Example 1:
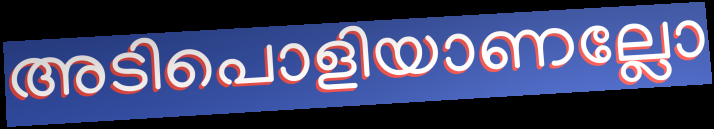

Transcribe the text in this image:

അടിപൊളിയാണല്ലോ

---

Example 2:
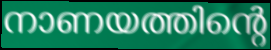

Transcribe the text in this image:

നാണയത്തിന്റെ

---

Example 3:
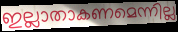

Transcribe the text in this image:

ഇല്ലാതാകണമെന്നില്ല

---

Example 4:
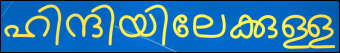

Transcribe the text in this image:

ഹിന്ദിയിലേക്കുള്ള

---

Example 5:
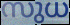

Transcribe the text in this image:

സുധ